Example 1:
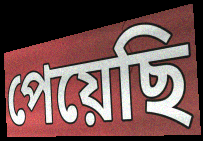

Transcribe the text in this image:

পেয়েছি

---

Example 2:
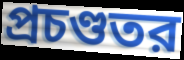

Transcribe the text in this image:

প্রচণ্ডতর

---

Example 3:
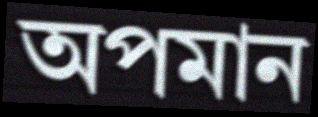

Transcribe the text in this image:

অপমান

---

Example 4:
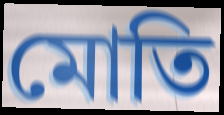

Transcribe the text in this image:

মোতি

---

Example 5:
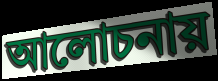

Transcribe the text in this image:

আলোচনায়